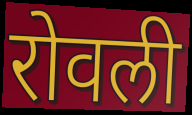
रोवली